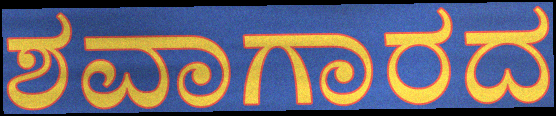
ಶವಾಗಾರದ